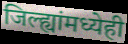
जिल्ह्यांमध्येही